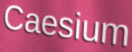
Caesium